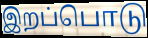
இறப்பொடு